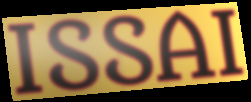
ISSAI